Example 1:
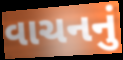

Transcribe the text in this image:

વાચનનું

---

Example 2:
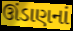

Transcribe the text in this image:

ઊંડાણનાં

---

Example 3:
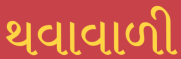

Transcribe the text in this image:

થવાવાળી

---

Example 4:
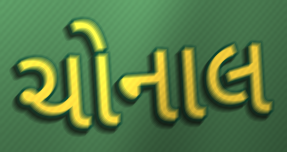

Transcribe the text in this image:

ચોનાલ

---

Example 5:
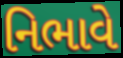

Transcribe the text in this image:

નિભાવે